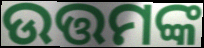
ଉତ୍ତମଙ୍କ